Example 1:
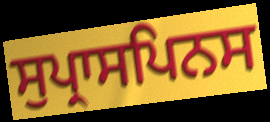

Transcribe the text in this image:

ਸੁਪ੍ਰਾਸਪਿਨਸ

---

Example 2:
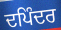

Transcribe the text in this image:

ਦਪਿੰਦਰ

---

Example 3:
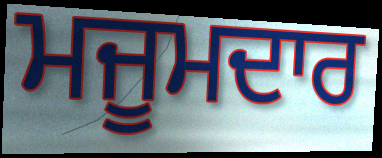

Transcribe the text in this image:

ਮਜੂਮਦਾਰ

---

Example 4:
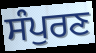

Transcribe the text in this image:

ਸੰਪੁਰਣ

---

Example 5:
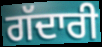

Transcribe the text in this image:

ਗੱਦਾਰੀ